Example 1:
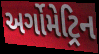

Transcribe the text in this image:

અર્ગોમેટ્રિન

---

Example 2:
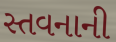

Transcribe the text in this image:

સ્તવનાની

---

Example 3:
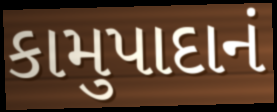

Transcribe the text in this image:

કામુપાદાનં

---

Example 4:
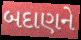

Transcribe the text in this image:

બદાણને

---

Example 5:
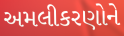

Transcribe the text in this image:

અમલીકરણોને